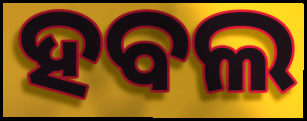
ହବଲ